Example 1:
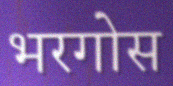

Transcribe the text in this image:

भरगोस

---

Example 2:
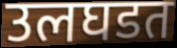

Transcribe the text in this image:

उलघडत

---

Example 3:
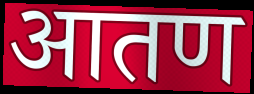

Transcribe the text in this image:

आतण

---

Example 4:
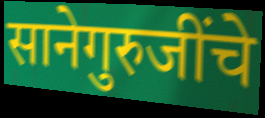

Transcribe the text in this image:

सानेगुरुजींचे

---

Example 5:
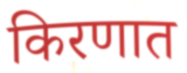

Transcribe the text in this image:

किरणात